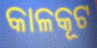
କାଳକୂଟ